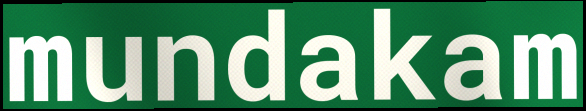
mundakam